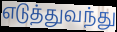
எடுத்துவந்து